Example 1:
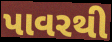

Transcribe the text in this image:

પાવરથી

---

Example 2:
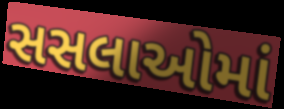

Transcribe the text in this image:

સસલાઓમાં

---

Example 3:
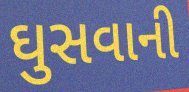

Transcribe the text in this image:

ઘુસવાની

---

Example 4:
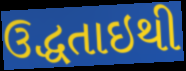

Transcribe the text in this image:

ઉદ્ધતાઇથી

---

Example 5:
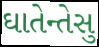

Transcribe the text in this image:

ઘાતેન્તેસુ